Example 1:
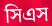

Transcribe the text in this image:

সিএস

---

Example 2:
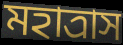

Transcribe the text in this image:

মহাত্রাস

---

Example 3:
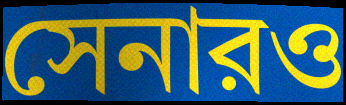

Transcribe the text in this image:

সেনারও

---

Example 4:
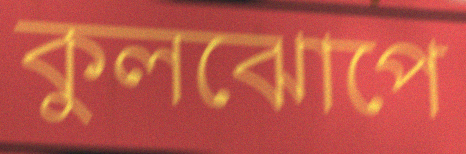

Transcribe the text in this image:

কুলঝোপে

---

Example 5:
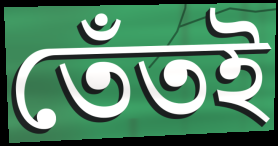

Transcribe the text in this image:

তেঁতই